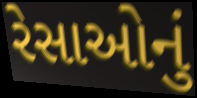
રેસાઓનું